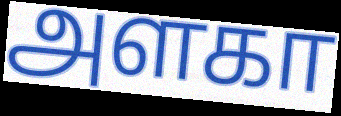
அளகா